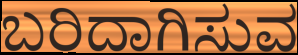
ಬರಿದಾಗಿಸುವ